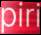
piri